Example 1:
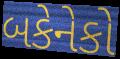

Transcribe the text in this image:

બકેનેકો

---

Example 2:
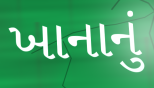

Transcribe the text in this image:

ખાનાનું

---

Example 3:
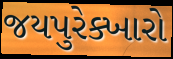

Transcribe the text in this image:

જયપુરેક્ખારો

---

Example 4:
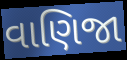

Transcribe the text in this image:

વાણિજા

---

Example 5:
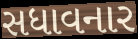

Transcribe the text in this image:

સધાવનાર